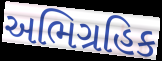
અભિગ્રહિક